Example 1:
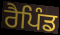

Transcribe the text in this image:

ਰੈਪਿੰਡ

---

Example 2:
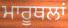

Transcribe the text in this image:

ਮਾਰੂਥਲਾਂ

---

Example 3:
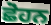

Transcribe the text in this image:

ਛੋਹਨ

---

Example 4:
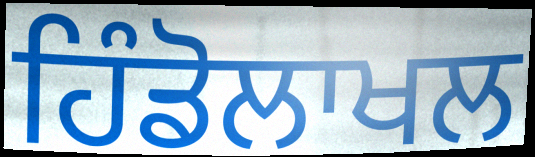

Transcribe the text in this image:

ਹਿੰਡੋਲਾਖਲ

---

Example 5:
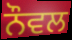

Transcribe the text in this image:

ਨੌਵਲ